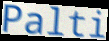
Palti